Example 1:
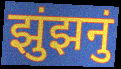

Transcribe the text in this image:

झुंझनुं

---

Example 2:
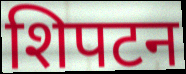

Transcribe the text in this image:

शिपटन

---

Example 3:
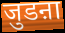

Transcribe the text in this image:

जुडऩा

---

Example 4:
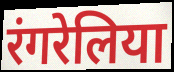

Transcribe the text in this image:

रंगरेलिया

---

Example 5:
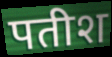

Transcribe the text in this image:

पतीश